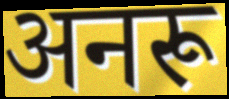
अनरू